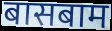
बासबाम